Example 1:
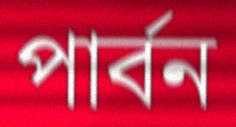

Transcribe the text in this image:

পাৰ্বন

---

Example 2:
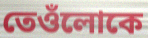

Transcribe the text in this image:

তেওঁলোকে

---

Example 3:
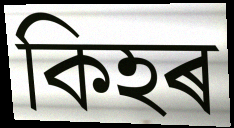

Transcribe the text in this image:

কিহৰ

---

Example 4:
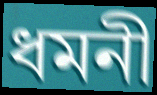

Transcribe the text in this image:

ধমনী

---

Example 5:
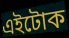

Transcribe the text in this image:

এইটোক